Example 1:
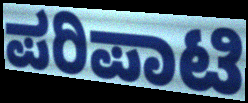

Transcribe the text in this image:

ಪರಿಪಾಟಿ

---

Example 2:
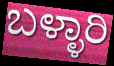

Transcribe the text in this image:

ಬಳ್ಳಾರಿ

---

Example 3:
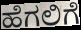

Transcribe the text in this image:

ಹೆಗಲಿಗೆ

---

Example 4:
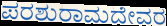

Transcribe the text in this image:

ಪರಶುರಾಮದೇವರ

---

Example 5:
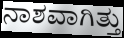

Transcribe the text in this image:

ನಾಶವಾಗಿತ್ತು